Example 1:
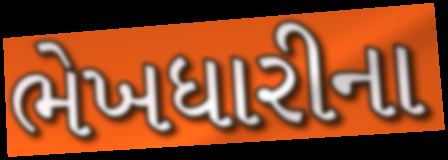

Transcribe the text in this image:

ભેખધારીના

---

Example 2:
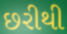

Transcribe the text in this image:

છરીથી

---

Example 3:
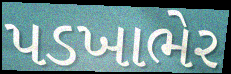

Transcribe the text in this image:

પડખાભેર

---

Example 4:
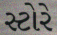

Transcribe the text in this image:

સ્ટોરે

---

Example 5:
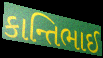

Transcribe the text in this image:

કાન્તિભાઈ